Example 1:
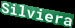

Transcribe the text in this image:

Silviera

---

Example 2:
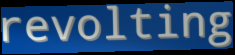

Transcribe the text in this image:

revolting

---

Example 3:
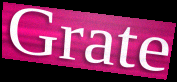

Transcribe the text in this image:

Grate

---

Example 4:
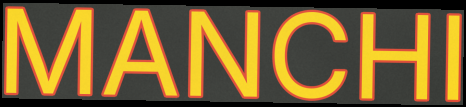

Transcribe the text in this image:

MANCHI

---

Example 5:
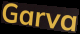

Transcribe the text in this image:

Garva